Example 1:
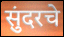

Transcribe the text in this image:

सुंदरचे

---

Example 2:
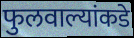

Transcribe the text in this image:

फुलवाल्यांकडे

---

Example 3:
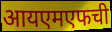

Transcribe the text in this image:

आयएमएफची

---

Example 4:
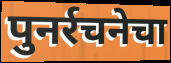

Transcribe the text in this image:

पुनर्रचनेचा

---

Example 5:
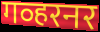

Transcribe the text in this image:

गव्हरनर